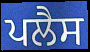
ਪਲੈਸ